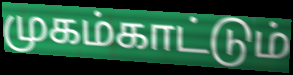
முகம்காட்டும்